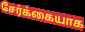
சேர்க்கையாக